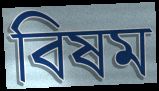
বিষম